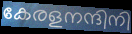
കേരളനന്ദിനി